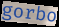
gorbo